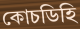
কোচডিহি